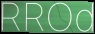
RROd